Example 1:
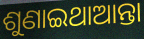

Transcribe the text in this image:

ଶୁଣାଇଥାଆନ୍ତା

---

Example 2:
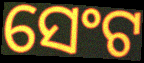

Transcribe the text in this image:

ସେଂଟ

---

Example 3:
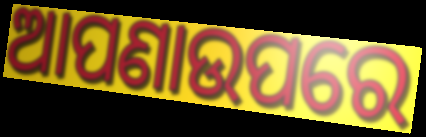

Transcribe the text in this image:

ଆପଣାଉପରେ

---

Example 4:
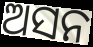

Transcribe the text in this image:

ଅସନ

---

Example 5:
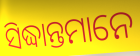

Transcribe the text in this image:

ସିଦ୍ଧାନ୍ତମାନେ